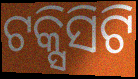
ଟକ୍ସିସିଟି